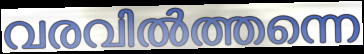
വരവിൽത്തന്നെ